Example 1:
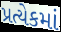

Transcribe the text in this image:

પ્રત્યેકમાં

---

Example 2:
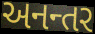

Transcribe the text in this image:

અનન્તર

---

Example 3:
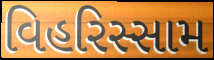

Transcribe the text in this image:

વિહરિસ્સામ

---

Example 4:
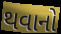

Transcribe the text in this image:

થવાનો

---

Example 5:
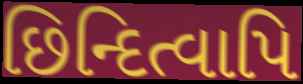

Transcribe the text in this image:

છિન્દિત્વાપિ